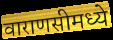
वाराणसीमध्ये